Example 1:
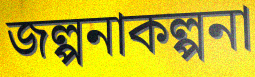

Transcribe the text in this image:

জল্পনাকল্পনা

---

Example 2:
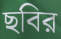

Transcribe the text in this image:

ছবির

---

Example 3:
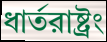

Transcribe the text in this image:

ধার্তরাষ্ট্রং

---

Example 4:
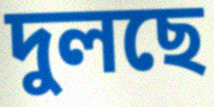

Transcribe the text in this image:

দুলছে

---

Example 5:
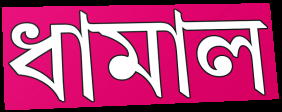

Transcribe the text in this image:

ধামাল